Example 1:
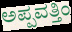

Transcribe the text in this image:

ಅಪ್ಪವತ್ತಿಂ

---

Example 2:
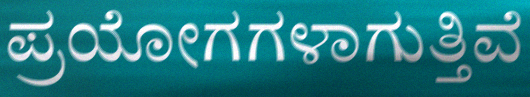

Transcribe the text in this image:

ಪ್ರಯೋಗಗಳಾಗುತ್ತಿವೆ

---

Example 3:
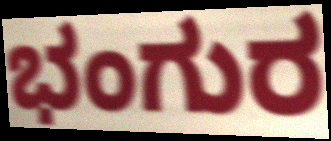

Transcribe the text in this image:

ಭಂಗುರ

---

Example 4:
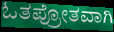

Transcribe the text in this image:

ಓತಪ್ರೋತವಾಗಿ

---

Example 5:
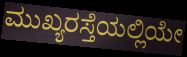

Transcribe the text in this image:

ಮುಖ್ಯರಸ್ತೆಯಲ್ಲಿಯೇ